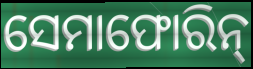
ସେମାଫୋରିନ୍